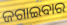
ଜଗାଇବାର